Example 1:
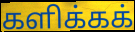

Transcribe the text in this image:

களிக்கக்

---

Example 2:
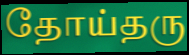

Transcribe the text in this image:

தோய்தரு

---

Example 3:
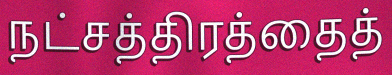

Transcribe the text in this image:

நட்சத்திரத்தைத்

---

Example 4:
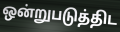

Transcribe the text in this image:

ஒன்றுபடுத்திட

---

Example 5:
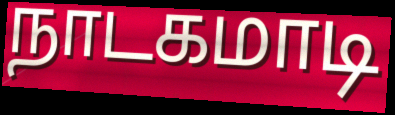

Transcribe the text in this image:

நாடகமாடி